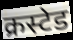
क्रस्टेड